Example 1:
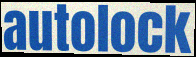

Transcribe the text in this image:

autolock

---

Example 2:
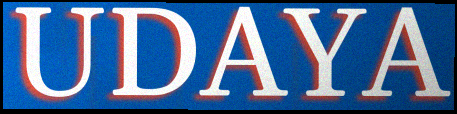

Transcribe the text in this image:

UDAYA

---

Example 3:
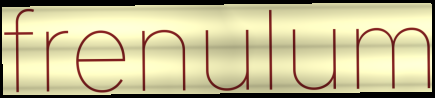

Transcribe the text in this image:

frenulum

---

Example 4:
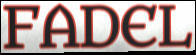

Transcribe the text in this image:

FADEL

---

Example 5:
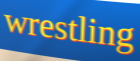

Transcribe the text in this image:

wrestling